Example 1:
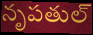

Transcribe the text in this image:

నృపతుల్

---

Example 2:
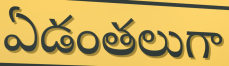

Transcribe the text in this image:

ఏడంతలుగా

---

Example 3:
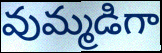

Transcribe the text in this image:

వుమ్మడిగా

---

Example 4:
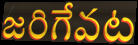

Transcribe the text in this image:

జరిగేవట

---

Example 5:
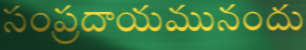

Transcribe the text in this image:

సంప్రదాయమునందు